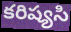
కరిష్యసి